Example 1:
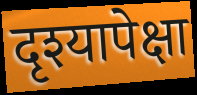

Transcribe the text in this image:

दृश्यापेक्षा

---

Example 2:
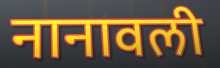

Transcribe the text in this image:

नानावली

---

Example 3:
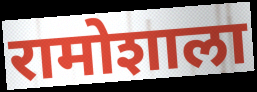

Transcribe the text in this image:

रामोशाला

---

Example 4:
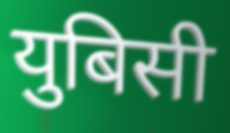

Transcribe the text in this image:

युबिसी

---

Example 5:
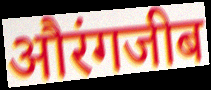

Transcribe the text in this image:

औरंगजीब